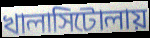
খালাসিটোলায়